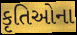
કૃતિઓના